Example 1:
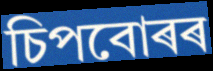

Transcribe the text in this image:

চিপবোৰৰ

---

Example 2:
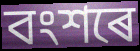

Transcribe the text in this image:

বংশৰে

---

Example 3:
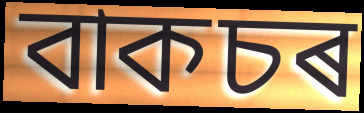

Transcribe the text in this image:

বাকচৰ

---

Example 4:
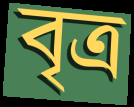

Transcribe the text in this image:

বৃত্ৰ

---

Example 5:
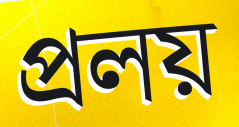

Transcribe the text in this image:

প্ৰলয়